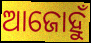
ଆଜୋହୁଁ